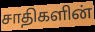
சாதிகளின்